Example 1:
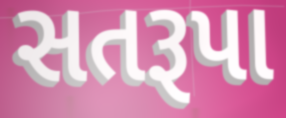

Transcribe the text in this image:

સતરૂપા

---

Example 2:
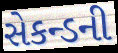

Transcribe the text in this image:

સેકન્ડની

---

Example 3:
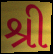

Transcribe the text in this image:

શ્રી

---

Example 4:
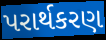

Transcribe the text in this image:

પરાર્થકરણ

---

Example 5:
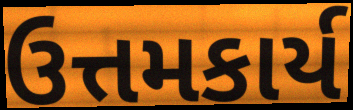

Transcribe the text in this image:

ઉત્તમકાર્ય